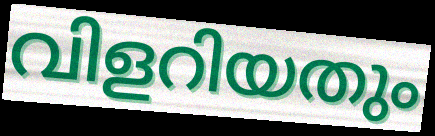
വിളറിയതും